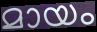
മായം